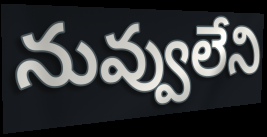
నువ్వులేని